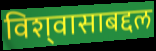
विश्वासाबद्दल